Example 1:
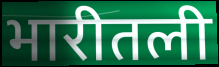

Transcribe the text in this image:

भारीतली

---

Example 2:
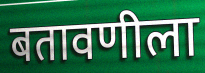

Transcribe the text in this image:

बतावणीला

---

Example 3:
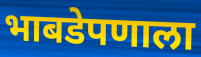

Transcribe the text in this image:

भाबडेपणाला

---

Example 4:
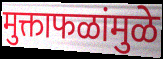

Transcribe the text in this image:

मुक्ताफळांमुळे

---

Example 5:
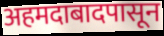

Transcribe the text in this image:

अहमदाबादपासून